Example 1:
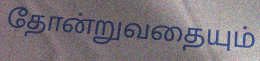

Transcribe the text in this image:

தோன்றுவதையும்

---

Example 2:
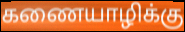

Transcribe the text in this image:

கணையாழிக்கு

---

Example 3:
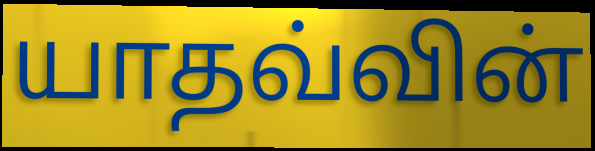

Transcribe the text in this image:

யாதவ்வின்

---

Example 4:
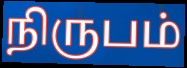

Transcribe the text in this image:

நிருபம்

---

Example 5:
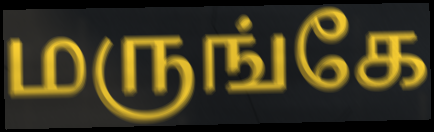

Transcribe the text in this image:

மருங்கே